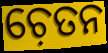
ଚ଼େତନ